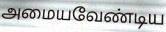
அமையவேண்டிய